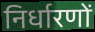
निर्धारणों